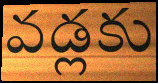
వడ్లకు